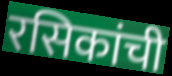
रसिकांची